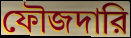
ফৌজদারি